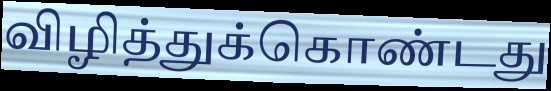
விழித்துக்கொண்டது